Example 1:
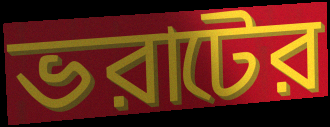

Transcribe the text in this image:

ভরাটের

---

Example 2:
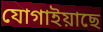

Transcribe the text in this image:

যোগাইয়াছে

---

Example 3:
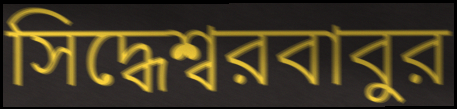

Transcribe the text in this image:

সিদ্ধেশ্বরবাবুর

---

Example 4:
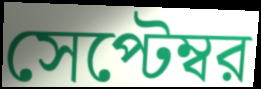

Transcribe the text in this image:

সেপ্টেম্বর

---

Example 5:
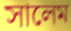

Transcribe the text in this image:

সালেম